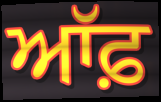
ਆੱਫ਼